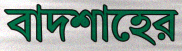
বাদশাহের